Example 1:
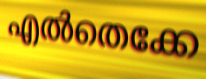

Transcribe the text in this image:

എൽതെക്കേ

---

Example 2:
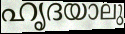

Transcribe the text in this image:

ഹൃദയാലു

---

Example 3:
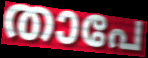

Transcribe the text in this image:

താപേ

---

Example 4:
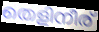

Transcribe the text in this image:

തെളിനീര്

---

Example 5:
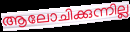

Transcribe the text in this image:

ആലോചിക്കുന്നില്ല